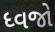
ધ્વજો